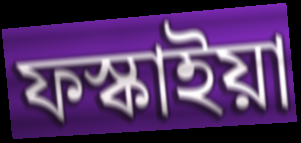
ফস্কাইয়া